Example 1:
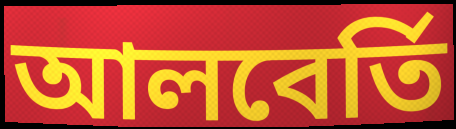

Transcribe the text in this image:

আলবের্তি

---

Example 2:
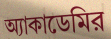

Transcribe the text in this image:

অ্যাকাডেমির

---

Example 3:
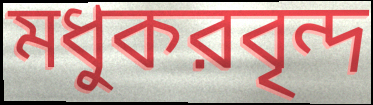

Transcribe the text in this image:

মধুকরবৃন্দ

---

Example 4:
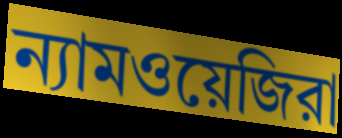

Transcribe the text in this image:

ন্যামওয়েজিরা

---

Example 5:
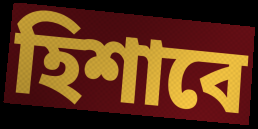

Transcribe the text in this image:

হিশাবে